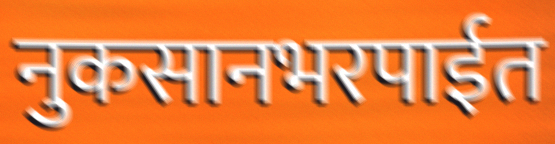
नुकसानभरपाईत